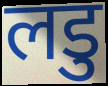
लडु